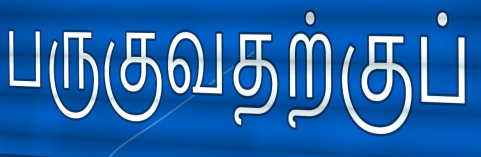
பருகுவதற்குப்